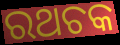
ରଥଚକ